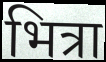
भित्रा